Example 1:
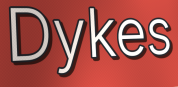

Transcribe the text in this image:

Dykes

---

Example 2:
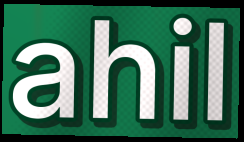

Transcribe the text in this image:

ahil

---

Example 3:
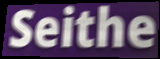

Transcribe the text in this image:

Seithe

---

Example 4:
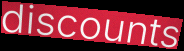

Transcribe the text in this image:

discounts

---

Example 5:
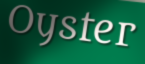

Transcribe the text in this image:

Oyster